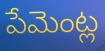
పేమెంట్ల